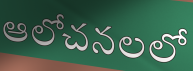
ఆలోచనలలో